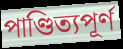
পাণ্ডিত্যপূর্ণ